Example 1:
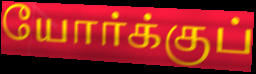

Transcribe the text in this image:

யோர்க்குப்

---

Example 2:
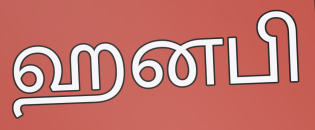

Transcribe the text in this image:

ஹனபி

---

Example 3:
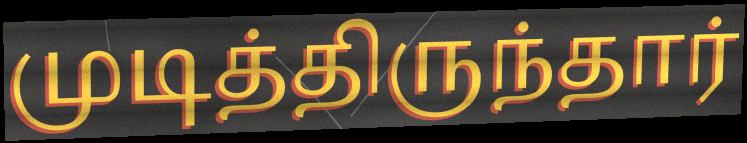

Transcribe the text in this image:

முடித்திருந்தார்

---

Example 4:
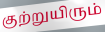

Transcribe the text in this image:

குற்றுயிரும்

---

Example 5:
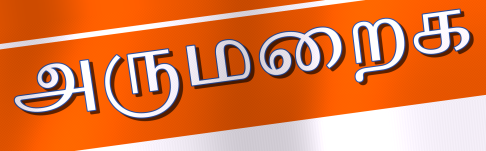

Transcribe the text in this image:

அருமறைக